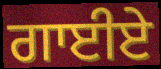
ਗਾਈਏ